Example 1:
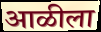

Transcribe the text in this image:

आळीला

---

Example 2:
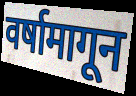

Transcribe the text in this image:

वर्षामागून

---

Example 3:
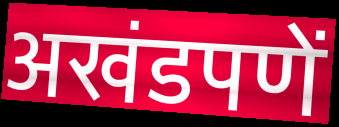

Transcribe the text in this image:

अखंडपणें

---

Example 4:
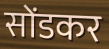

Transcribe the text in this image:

सोंडकर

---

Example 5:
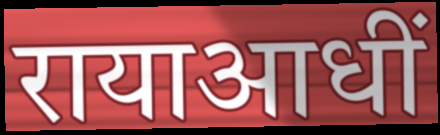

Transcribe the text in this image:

रायाआधीं